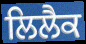
ਲਿਲੈਕ